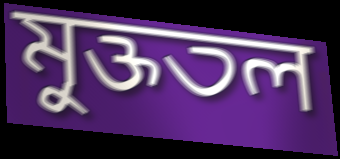
মুক্ততল